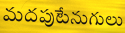
మదపుటేనుగులు